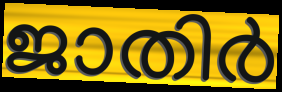
ജാതിർ